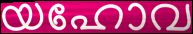
യഹോവ